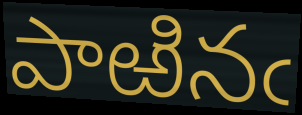
పాఱినఁ